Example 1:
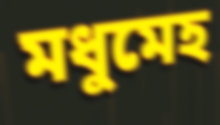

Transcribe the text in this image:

মধুমেহ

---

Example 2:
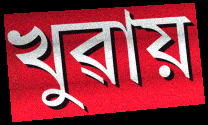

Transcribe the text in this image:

খুৱায়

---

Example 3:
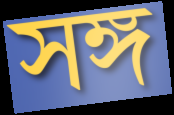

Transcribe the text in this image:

সঙ্গ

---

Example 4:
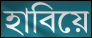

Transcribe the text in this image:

হাবিয়ে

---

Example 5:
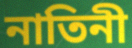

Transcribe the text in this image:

নাতিনী